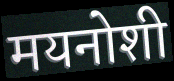
मयनोशी